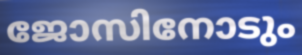
ജോസിനോടും